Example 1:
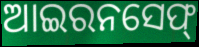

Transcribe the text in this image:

ଆଇରନସେଫ୍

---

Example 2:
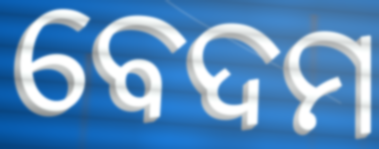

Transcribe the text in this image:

ବେଦମ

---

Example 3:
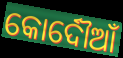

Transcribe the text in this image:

କୋର୍ଦୌଆଁ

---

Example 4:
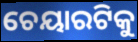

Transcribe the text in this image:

ଚେୟାରଟିକୁ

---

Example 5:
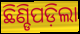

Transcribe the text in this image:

ଛିଣ୍ଡିପଡ଼ିଲା